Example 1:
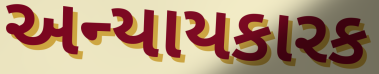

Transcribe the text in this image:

અન્યાયકારક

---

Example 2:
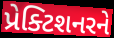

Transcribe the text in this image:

પ્રેક્ટિશનરને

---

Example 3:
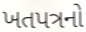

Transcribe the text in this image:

ખતપત્રનો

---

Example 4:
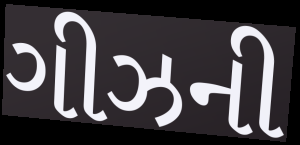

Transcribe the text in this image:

ગીઝની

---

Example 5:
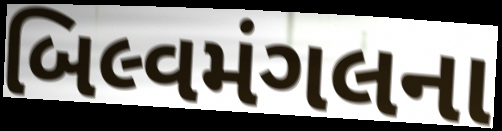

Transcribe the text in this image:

બિલ્વમંગલના